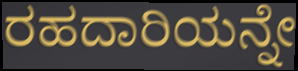
ರಹದಾರಿಯನ್ನೇ